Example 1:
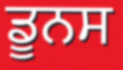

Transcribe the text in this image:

ਡੂਨਸ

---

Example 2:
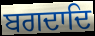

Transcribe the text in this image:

ਬਗਦਾਦਿ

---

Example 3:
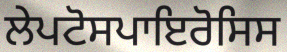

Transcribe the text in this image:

ਲੇਪਟੋਸਪਾਇਰੋਸਿਸ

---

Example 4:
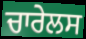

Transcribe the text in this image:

ਚਾਰੇਲਸ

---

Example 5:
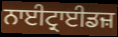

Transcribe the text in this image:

ਨਾਈਟ੍ਰਾਈਡਜ਼